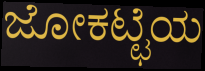
ಜೋಕಟ್ಟೆಯ